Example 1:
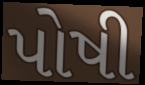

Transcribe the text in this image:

પોષી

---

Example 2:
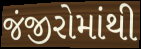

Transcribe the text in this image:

જંજીરોમાંથી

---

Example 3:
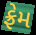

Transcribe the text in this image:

ફ્રેમ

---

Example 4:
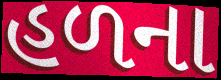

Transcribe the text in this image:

હળના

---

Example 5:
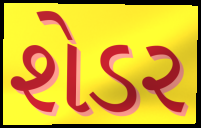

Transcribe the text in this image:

શેડર